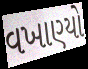
વખાણ્યો